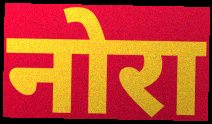
नोरा